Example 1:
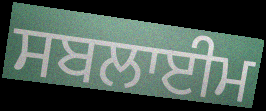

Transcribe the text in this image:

ਸਬਲਾਈਮ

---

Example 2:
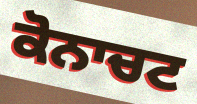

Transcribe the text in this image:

ਕੋਨਾਚਟ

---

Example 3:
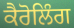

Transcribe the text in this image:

ਕੈਰੋਲਿੰਗ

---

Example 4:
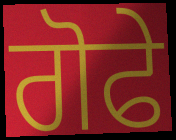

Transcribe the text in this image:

ਗੋਫੇ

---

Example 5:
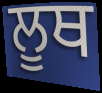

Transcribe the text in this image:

ਲੂਥ